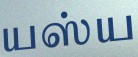
யஸ்ய